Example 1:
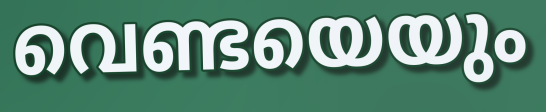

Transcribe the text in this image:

വെണ്ടയെയും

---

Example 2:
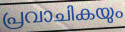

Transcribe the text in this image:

പ്രവാചികയും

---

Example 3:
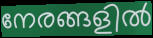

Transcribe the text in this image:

നേരങ്ങളിൽ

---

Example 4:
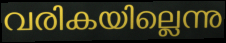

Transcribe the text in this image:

വരികയില്ലെന്നു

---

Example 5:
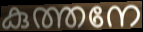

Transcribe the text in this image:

കുത്തനേ